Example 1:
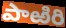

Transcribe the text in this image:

పాఱిరి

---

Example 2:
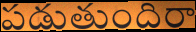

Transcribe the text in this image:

పడుతుందిరా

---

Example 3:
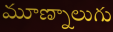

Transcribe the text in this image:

మూణ్నాలుగు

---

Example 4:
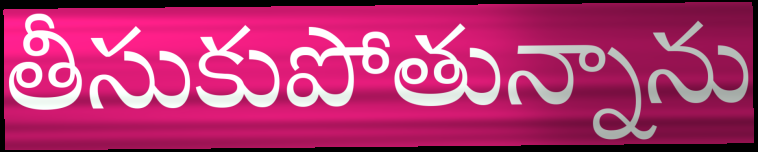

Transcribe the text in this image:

తీసుకుపోతున్నాను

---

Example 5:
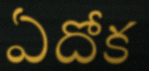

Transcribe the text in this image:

ఏదోక